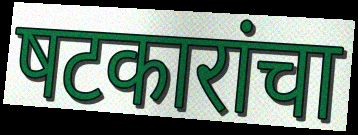
षटकारांचा